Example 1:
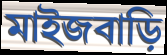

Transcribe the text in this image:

মাইজবাড়ি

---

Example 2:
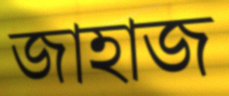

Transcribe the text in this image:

জাহাজ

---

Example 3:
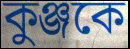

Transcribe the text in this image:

কুঞ্জকে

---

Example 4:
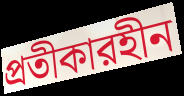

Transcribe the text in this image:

প্রতীকারহীন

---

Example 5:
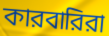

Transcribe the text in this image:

কারবারিরা